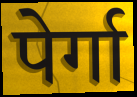
पेर्गा